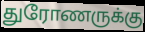
துரோணருக்கு